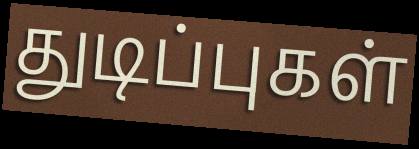
துடிப்புகள்